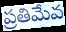
ప్రతిమేవ